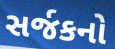
સર્જકનો